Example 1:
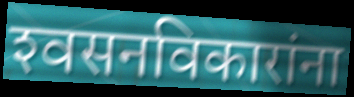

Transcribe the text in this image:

श्वसनविकारांना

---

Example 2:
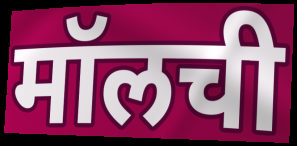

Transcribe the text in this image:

मॉलची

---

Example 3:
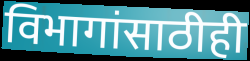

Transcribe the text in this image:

विभागांसाठीही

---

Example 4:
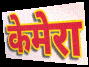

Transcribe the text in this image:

केमेरा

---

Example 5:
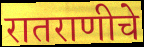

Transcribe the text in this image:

रातराणीचे